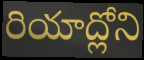
రియాద్లోని